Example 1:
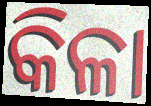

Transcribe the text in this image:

କିଳା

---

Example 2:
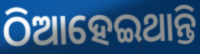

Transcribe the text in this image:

ଠିଆହେଇଥାନ୍ତି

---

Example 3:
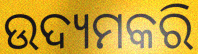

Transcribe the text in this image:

ଉଦ୍ୟମକରି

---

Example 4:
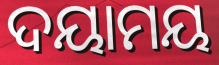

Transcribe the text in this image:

ଦୟାମୟ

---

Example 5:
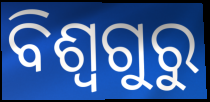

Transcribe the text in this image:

ବିଶ୍ୱଗୁରୁ